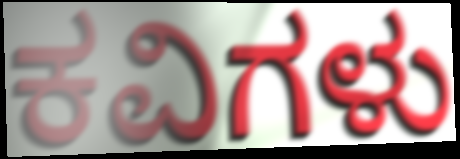
ಕವಿಗಳು